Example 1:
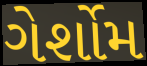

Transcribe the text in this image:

ગેર્શોમ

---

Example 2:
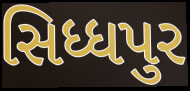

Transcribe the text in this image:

સિધ્ધપુર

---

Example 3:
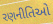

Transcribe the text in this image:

રણનીતિઓ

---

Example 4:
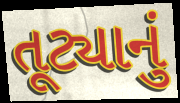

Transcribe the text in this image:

તૂટ્યાનું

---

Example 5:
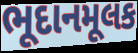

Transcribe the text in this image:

ભૂદાનમૂલક